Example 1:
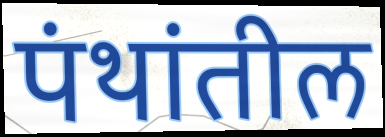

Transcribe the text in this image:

पंथांतील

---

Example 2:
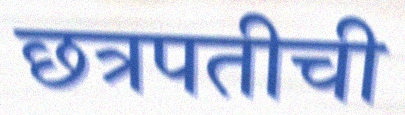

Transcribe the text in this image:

छत्रपतीची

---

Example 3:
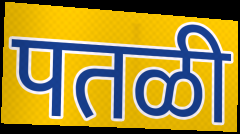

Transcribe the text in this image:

पतळी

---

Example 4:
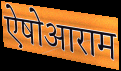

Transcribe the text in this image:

ऐषोआराम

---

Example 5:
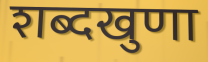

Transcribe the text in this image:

शब्दखुणा